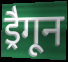
ड्रैगून